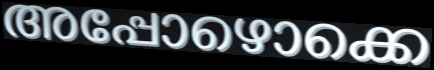
അപ്പോഴൊക്കെ